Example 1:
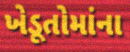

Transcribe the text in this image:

ખેડૂતોમાંના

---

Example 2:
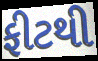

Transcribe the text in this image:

ફીટથી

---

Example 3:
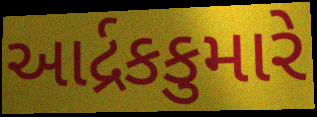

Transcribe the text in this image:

આર્દ્રકકુમારે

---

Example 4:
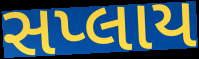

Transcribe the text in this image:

સપ્લાય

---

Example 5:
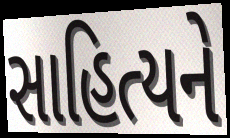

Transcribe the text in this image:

સાહિત્યને